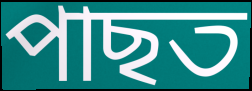
পাছত